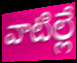
వాటిల్లే